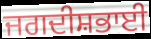
ਜਗਦੀਸ਼ਭਾਈ